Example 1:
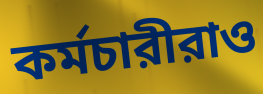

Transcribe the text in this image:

কর্মচারীরাও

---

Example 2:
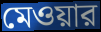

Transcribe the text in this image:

মেওয়ার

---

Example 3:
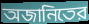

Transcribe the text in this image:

অজানিতের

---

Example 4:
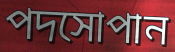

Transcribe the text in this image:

পদসোপান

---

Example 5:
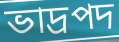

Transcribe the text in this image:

ভাদ্রপদ